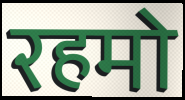
रहमो